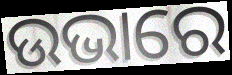
ଉଭାରେ